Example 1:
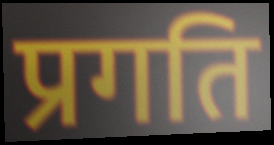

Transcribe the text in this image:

प्रगति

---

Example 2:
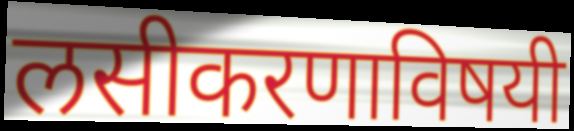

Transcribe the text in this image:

लसीकरणाविषयी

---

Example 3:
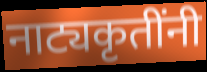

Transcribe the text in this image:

नाट्यकृतींनी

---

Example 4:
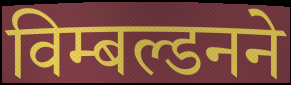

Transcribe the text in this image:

विम्बल्डनने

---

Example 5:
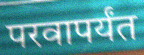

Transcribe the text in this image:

परवापर्यंत